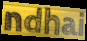
ndhai